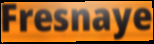
Fresnaye